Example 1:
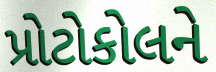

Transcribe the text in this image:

પ્રોટોકોલને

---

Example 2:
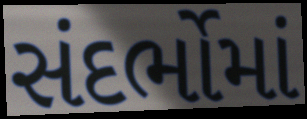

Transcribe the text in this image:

સંદર્ભોમાં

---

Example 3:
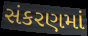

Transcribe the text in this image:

સંકરણમાં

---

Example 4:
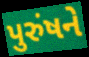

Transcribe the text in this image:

પુરુંષને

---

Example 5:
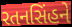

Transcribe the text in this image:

રતનસિંહને